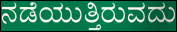
ನಡೆಯುತ್ತಿರುವದು